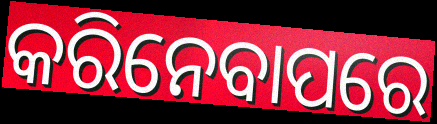
କରିନେବାପରେ